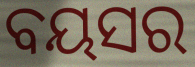
ବୟସର